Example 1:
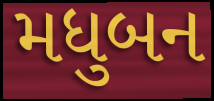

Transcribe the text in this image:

મધુબન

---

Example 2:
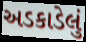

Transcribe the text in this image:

અડકાડેલું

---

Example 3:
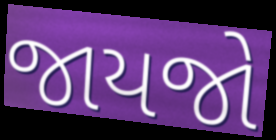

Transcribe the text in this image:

જાયજો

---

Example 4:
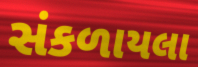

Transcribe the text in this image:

સંકળાયલા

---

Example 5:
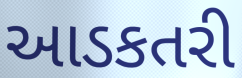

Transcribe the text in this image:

આડકતરી